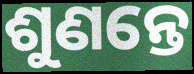
ଶୁଣନ୍ତେ